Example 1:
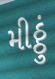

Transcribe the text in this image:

મીઠ્ઠું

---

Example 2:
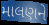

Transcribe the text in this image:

માલણને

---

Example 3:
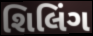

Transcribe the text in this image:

શિલિંગ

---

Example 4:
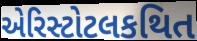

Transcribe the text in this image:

એરિસ્ટોટલકથિત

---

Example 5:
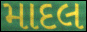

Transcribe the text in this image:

માદલ